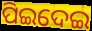
ପିଇଦେଇ